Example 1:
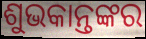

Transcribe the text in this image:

ଶୁଭକାନ୍ତଙ୍କର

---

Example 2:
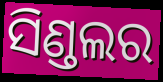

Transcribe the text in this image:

ସିଣ୍ଡଲର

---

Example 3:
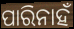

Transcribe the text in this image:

ପାରିନାହଁ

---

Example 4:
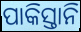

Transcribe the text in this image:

ପାକିସ୍ତାନି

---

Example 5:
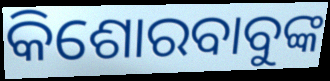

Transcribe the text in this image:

କିଶୋରବାବୁଙ୍କ